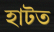
হাটত